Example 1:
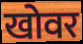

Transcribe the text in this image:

खोवर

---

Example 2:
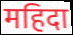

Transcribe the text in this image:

महिदा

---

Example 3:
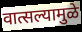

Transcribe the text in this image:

वात्सल्यामुळे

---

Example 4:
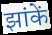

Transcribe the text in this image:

झांकें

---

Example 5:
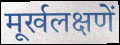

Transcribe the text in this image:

मूर्खलक्षणें